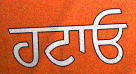
ਹਟਾਓ